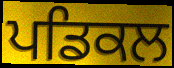
ਪਡਿਕਲ